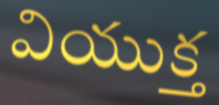
వియుక్త